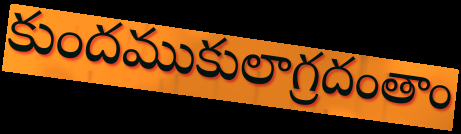
కుందముకులాగ్రదంతాం